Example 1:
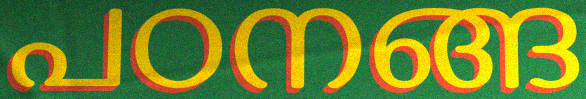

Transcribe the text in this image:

പഠനങ്ങ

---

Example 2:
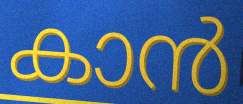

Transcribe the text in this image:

കാൻ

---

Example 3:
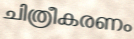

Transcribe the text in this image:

ചിത്രീകരണം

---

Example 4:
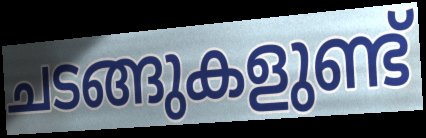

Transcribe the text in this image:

ചടങ്ങുകളുണ്ട്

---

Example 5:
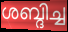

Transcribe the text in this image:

ശബ്ദിച്ച